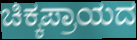
ಚಿಕ್ಕಪ್ರಾಯದ